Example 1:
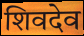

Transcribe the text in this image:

शिवदेव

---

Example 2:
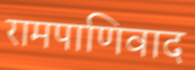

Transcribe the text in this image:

रामपाणिवाद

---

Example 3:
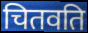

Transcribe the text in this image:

चितवति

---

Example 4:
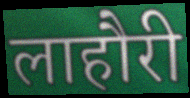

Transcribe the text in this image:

लाहौरी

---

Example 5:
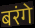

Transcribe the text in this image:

बरंगे